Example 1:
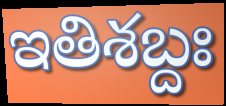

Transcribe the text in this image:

ఇతిశబ్దః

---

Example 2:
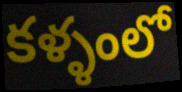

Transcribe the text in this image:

కళ్ళంలో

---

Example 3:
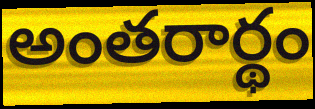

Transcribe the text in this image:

అంతరార్థం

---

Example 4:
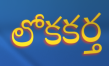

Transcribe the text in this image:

లోకకర్త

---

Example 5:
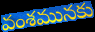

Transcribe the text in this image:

వంశమునకు